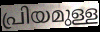
പ്രിയമുള്ള